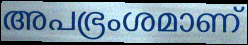
അപഭ്രംശമാണ്